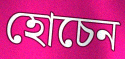
হোচেন